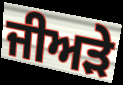
ਜੀਅੜੇ